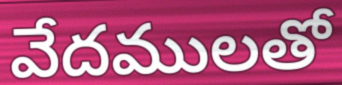
వేదములతో